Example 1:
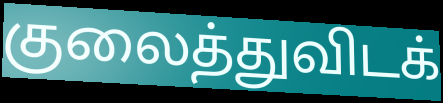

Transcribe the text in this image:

குலைத்துவிடக்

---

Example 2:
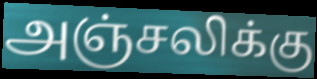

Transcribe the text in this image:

அஞ்சலிக்கு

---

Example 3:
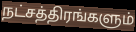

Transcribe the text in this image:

நட்சத்திரங்களும்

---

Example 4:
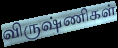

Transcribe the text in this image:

விருஷ்ணிகள்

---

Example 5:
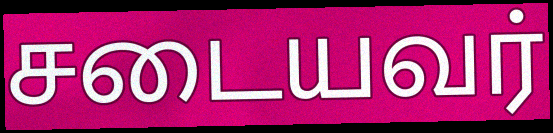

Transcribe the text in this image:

சடையவர்